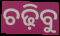
ଚଢ଼ିବୁ